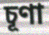
চূণা